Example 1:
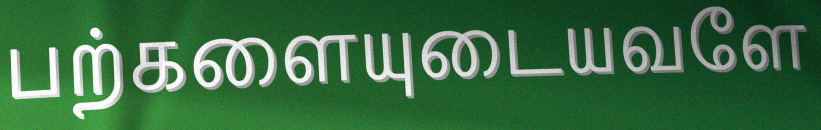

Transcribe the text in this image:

பற்களையுடையவளே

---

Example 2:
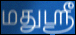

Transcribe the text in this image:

மதுஸ்ரீ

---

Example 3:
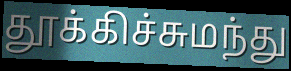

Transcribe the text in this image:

தூக்கிச்சுமந்து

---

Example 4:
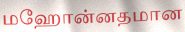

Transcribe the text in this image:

மஹோன்னதமான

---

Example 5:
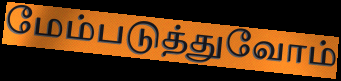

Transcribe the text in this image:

மேம்படுத்துவோம்